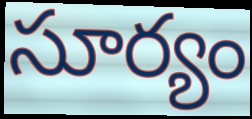
సూర్యం